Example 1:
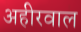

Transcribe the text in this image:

अहीरवाल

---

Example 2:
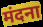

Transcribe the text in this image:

मंदना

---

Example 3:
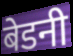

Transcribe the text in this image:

बेडनी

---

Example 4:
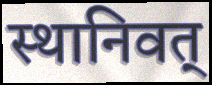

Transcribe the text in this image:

स्थानिवत्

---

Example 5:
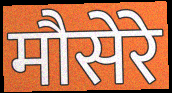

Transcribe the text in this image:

मौसेरे